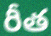
రీత